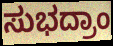
ಸುಭದ್ರಾಂ